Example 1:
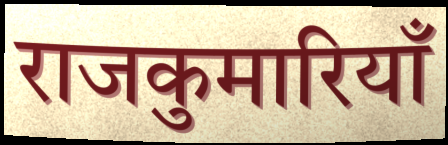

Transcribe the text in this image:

राजकुमारियाँ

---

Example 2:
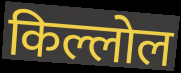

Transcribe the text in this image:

किल्लोल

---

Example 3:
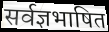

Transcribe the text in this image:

सर्वज्ञभाषित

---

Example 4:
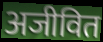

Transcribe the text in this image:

अजीवित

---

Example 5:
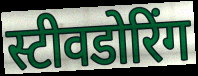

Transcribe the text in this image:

स्टीवडोरिंग